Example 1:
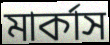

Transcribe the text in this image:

মার্কাস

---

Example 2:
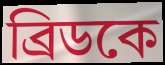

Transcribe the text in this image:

ব্রিডকে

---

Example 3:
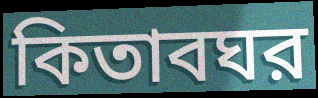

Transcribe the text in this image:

কিতাবঘর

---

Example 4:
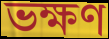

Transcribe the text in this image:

ভক্ষণ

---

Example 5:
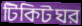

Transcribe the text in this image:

টিকিটঘর